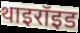
थाइरॉइड